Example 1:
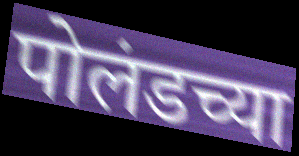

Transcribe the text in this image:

पोलंडच्या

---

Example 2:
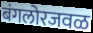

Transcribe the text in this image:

बंगलोरजवळ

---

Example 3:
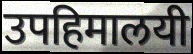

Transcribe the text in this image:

उपहिमालयी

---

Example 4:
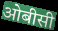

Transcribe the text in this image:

ओबीसी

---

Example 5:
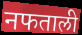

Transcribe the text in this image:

नफताली